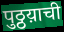
पुठ्ठय़ाची